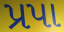
પ્રપા